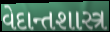
વેદાન્તશાસ્ત્ર